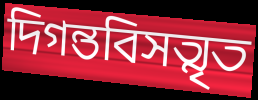
দিগন্তবিসত্মৃত